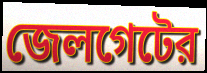
জেলগেটের